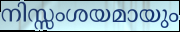
നിസ്സംശയമായും